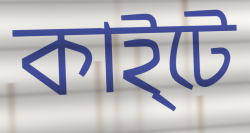
কাই্টে